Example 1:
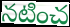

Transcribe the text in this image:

నటించ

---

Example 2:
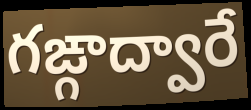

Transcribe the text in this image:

గఙ్గాద్వారే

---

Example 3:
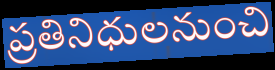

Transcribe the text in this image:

ప్రతినిధులనుంచి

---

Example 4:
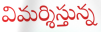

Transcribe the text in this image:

విమర్శిస్తున్న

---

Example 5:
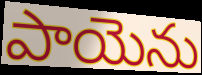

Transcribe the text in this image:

పాయెను